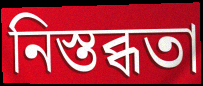
নিস্তব্ধতা